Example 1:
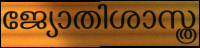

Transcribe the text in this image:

ജ്യോതിശാസ്ത്ര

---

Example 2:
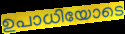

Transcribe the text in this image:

ഉപാധിയോടെ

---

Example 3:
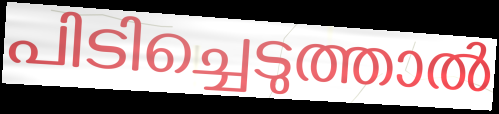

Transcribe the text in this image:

പിടിച്ചെടുത്താൽ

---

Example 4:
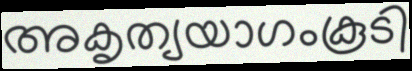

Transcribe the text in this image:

അകൃത്യയാഗംകൂടി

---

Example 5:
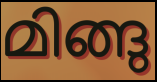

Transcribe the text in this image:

മിങ്ങു